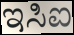
ಇಸಿಐ